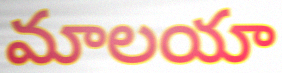
మాలయా